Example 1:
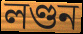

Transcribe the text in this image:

লণ্ডন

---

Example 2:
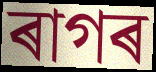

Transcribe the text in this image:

ৰাগৰ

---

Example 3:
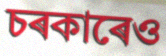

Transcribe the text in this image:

চৰকাৰেও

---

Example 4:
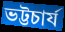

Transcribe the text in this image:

ভট্টচাৰ্য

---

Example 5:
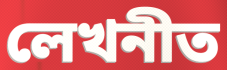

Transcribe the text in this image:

লেখনীত